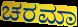
ಚರಮಾ